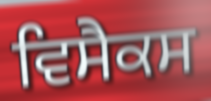
ਵਿਸੈਕਸ